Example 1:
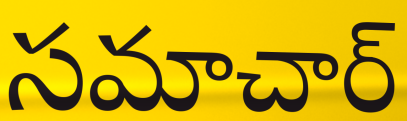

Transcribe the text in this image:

సమాచార్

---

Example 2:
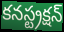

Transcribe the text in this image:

కనస్ట్రక్షన్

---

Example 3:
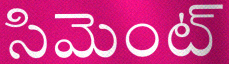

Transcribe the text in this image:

సిమెంట్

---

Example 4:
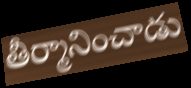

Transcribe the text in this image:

తీర్మానించాడు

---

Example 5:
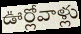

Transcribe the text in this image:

ఊర్లోవాళ్లు